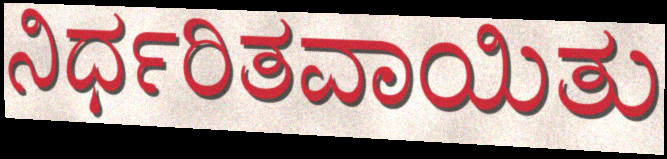
ನಿರ್ಧರಿತವಾಯಿತು